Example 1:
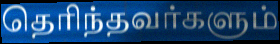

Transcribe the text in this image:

தெரிந்தவர்களும்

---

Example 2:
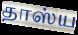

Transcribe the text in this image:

தாஸ்ய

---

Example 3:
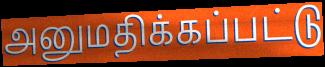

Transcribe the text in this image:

அனுமதிக்கப்பட்டு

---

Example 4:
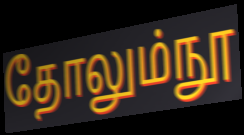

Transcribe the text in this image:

தோலும்நூ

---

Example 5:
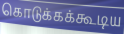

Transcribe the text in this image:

கொடுக்கக்கூடிய